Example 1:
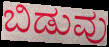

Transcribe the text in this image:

ಬಿಡುವು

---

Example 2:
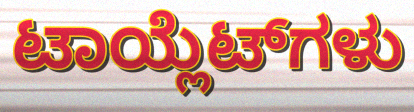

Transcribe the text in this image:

ಟಾಯ್ಲೆಟ್‌ಗಳು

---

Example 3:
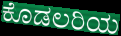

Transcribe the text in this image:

ಕೊಡಲರಿಯ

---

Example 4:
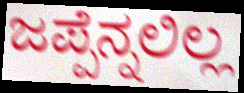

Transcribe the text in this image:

ಜಪ್ಪೆನ್ನಲಿಲ್ಲ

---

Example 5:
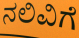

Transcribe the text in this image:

ನಲಿವಿಗೆ